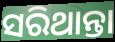
ସରିଥାନ୍ତା